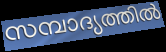
സമ്പാദ്യത്തിൽ